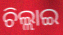
ଚିଲ୍ଲାଇ